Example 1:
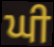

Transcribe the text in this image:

ਘੀ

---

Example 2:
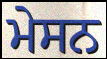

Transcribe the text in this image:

ਮੇਸਨ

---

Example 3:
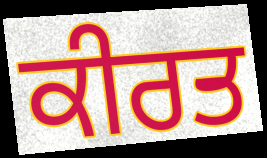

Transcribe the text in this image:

ਕੀਰਤ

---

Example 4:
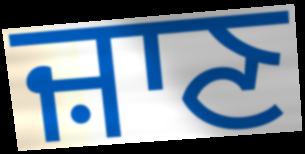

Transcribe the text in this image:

ਜ਼ਾਣ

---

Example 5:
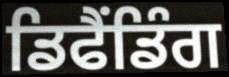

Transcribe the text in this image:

ਡਿਫੈਂਡਿੰਗ